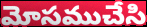
మోసముచేసి